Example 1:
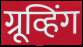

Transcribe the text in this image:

ग्रूव्हिंग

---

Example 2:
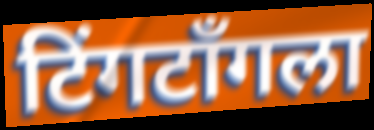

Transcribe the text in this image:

टिंगटॉंगला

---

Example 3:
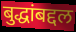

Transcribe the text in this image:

बुद्धांबद्दल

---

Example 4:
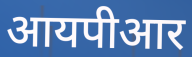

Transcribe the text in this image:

आयपीआर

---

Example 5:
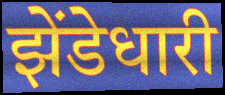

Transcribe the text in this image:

झेंडेधारी